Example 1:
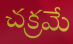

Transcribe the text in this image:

చక్రమే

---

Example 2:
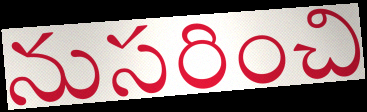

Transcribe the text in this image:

నుసరించి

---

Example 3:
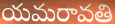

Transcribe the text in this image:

యమరావతి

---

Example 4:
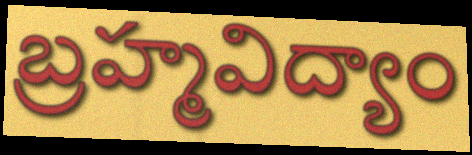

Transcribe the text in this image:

బ్రహ్మవిద్యాం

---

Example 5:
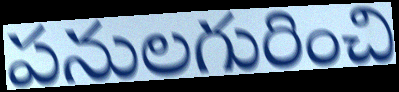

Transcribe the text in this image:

పనులగురించి